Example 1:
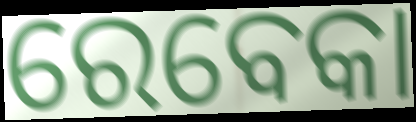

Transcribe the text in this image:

ରେବେକା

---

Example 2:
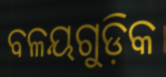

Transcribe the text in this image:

ବଳୟଗୁଡ଼ିକ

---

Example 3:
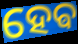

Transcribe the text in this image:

ହେଵ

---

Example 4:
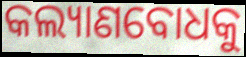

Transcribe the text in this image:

କଲ୍ୟାଣବୋଧକୁ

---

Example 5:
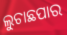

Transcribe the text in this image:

ଲୁଚାଛପାର